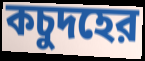
কচুদহের